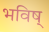
भविष्